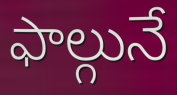
ఫాల్గునే